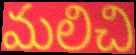
మలిచి